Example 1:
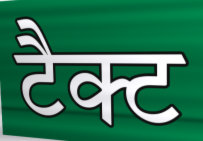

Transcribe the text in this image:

टैक्ट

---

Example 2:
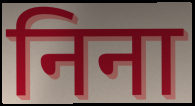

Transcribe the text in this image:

निना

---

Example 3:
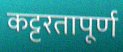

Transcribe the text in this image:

कट्टरतापूर्ण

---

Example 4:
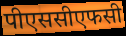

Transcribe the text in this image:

पीएससीएफसी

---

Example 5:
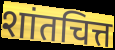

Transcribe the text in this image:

शांतचित्त